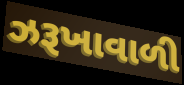
ઝરૂખાવાળી